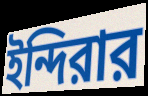
ইন্দিরার